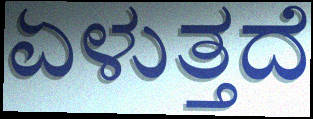
ಏಳುತ್ತದೆ